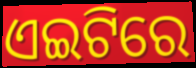
ଏଇଟିରେ